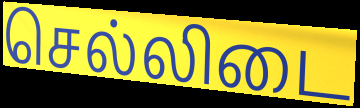
செல்லிடை